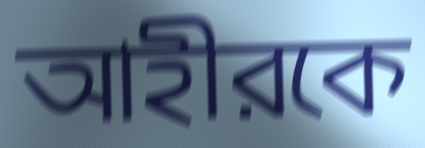
আহীরকে